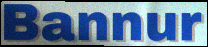
Bannur